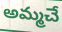
అమ్మచే